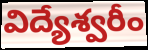
విద్యేశ్వరీం